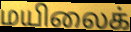
மயிலைக்